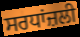
ਸਰਧਾਂਜ਼ਲੀ